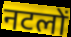
नटलों